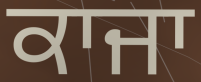
ਕਾਜਾ